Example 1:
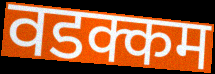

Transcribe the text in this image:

वडक्कम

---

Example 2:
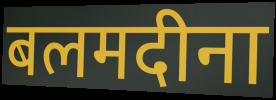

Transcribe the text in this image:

बलमदीना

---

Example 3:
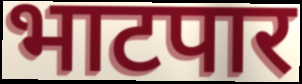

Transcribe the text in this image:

भाटपार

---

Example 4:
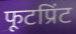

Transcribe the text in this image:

फूटप्रिंट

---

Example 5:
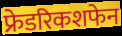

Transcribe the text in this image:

फ्रेडरिकशफेन